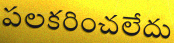
పలకరించలేదు